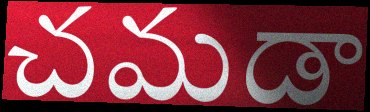
చమడా